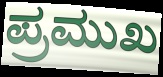
ಪ್ರಮುಖ